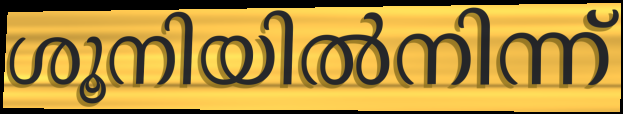
ശൂനിയിൽനിന്ന്